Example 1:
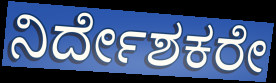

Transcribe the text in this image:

ನಿರ್ದೇಶಕರೇ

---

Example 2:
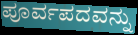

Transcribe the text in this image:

ಪೂರ್ವಪದವನ್ನು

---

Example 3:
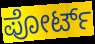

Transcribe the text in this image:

ಪೋರ್ಟ್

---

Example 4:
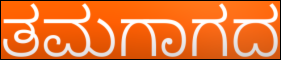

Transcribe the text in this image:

ತಮಗಾಗದ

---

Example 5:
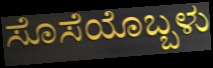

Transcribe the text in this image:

ಸೊಸೆಯೊಬ್ಬಳು